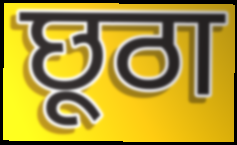
छूठा